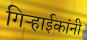
गिऱ्हाईकांनी